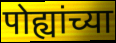
पोह्यांच्या